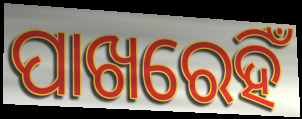
ପାଖରେହିଁ